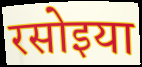
रसोइया